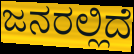
ಜನರಲ್ಲಿದೆ